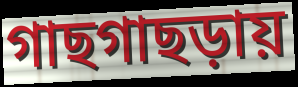
গাছগাছড়ায়